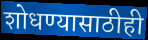
शोधण्यासाठीही